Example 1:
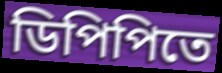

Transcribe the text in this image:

ডিপিপিতে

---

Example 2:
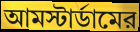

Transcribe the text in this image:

আমস্টার্ডামের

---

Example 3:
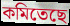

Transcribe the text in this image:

কমিতেছে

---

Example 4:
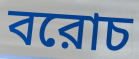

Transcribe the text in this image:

বরোচ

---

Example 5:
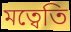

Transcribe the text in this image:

মত্বেতি